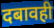
दबावही